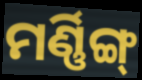
ମର୍ଣ୍ଣିଙ୍ଗ୍